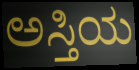
ಅಸ್ತಿಯ